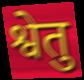
श्वेतु